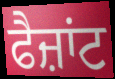
ਫੈਜ਼ਾਂਟ